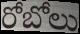
రోబోలు